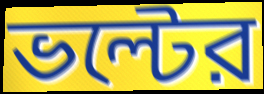
ভল্টের